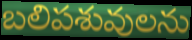
బలిపశువులను